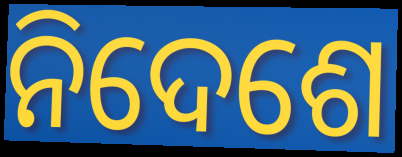
ନିଦେଶେ